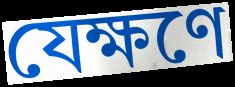
যেক্ষণে